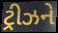
ટ્રીઝને